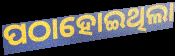
ପଠାହୋଇଥିଲା